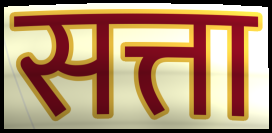
सत्ता